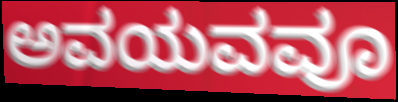
ಅವಯವವೂ